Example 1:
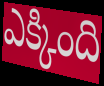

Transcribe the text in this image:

ఎక్కింది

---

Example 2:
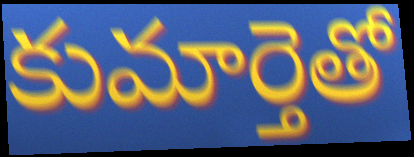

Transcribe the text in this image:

కుమార్తెతో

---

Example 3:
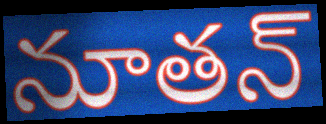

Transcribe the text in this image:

నూతన్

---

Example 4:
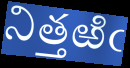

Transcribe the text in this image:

నిత్తఱిఁ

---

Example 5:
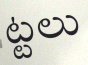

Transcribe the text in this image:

ట్టలు